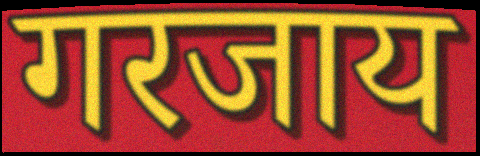
गरजाय